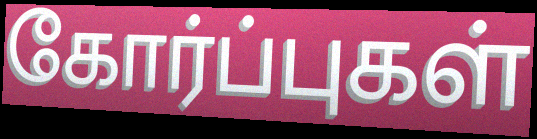
கோர்ப்புகள்